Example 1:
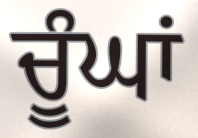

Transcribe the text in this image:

ਚੂੰਘਾਂ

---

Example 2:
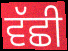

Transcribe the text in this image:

ਵੱਛੀ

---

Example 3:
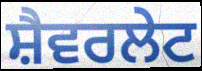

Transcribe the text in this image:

ਸ਼ੈਵਰਲੇਟ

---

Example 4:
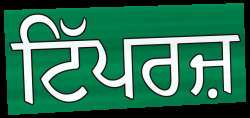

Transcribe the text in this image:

ਟਿੱਪਰਜ਼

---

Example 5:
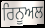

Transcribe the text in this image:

ਰਿਨੂਅਲ